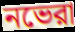
নভেরা